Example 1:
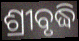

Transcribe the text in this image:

ଶ୍ରୀବୃଦ୍ଧି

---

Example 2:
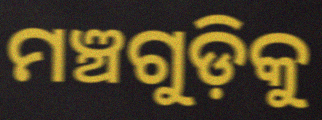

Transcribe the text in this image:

ମଞ୍ଚଗୁଡ଼ିକୁ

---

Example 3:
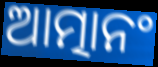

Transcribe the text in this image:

ଆତ୍ମାନଂ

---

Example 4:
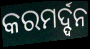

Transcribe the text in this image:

କରମର୍ଦ୍ଦନ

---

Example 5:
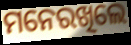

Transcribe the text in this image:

ମନେରଖିଲେ